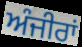
ਅੰਜੀਰਾਂ